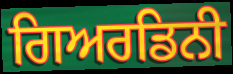
ਗਿਅਰਡਿਨੀ